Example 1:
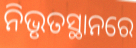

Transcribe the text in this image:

ନିଭୃତସ୍ଥାନରେ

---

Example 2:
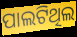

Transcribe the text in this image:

ପାଲଟିଥିଲ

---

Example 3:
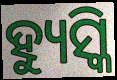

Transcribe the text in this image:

ହ୍ୟୁସ୍କି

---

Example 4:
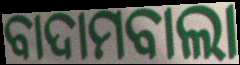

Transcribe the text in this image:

ବାଦାମବାଲା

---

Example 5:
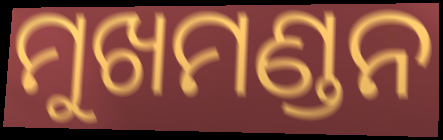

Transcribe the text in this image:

ମୁଖମଣ୍ଡନ